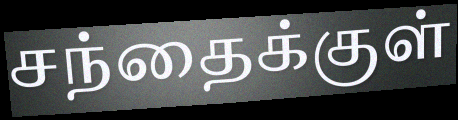
சந்தைக்குள்